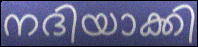
നദിയാക്കി